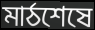
মাঠশেষে